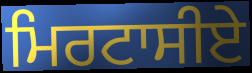
ਮਿਰਟਾਸੀਏ